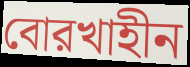
বোরখাহীন